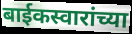
बाईकस्वारांच्या